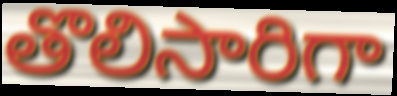
తొలిసారిగా